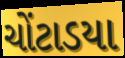
ચોંટાડયા